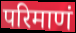
परिमाणं